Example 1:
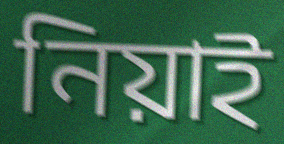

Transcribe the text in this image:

নিয়াই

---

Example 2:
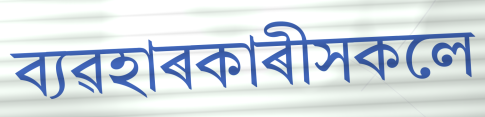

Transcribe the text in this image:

ব্যৱহাৰকাৰীসকলে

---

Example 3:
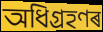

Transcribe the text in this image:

অধিগ্ৰহণৰ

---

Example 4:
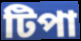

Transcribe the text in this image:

টিপা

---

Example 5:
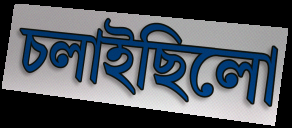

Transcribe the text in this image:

চলাইছিলো